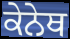
ਕੇਨੇਥ